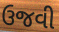
ઉજવી